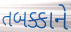
તબક્કાને